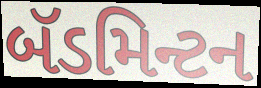
બૅડમિન્ટન